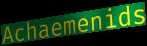
Achaemenids